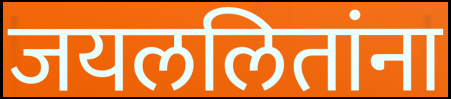
जयललितांना